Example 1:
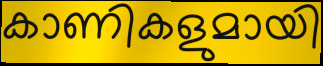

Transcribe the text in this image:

കാണികളുമായി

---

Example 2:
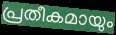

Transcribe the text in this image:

പ്രതീകമായും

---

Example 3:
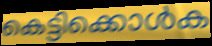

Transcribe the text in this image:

കെട്ടിക്കൊൾക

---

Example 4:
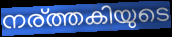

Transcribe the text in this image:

നര്ത്തകിയുടെ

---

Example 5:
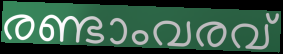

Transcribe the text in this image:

രണ്ടാംവരവ്